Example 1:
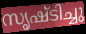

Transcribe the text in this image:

സൃഷ്ടിച്ചു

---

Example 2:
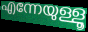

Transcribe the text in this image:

എന്നേയുള്ളൂ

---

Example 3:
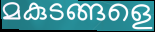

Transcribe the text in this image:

മകുടങ്ങളെ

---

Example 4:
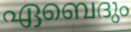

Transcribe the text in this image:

ഏബെദും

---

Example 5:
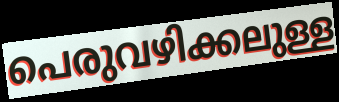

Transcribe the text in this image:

പെരുവഴിക്കലുള്ള